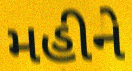
મહીને